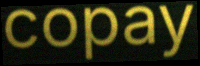
copay